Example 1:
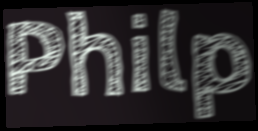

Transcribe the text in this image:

Philp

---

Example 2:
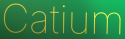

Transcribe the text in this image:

Catium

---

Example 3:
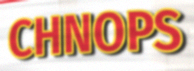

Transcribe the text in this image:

CHNOPS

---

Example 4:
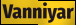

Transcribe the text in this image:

Vanniyar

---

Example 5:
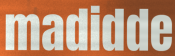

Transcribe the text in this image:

madidde